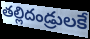
తల్లిదండ్రులకే